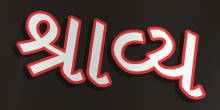
શ્રાવ્ય